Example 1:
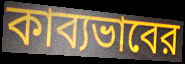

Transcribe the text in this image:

কাব্যভাবের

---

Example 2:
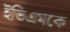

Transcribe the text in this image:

ইভিএমকে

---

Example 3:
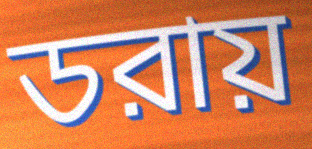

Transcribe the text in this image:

ডরায়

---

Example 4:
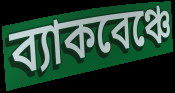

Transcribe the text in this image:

ব্যাকবেঞ্চে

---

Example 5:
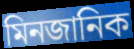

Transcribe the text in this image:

মিনজানিক